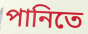
পানিতে